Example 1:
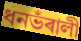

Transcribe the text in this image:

ধনভঁৰালী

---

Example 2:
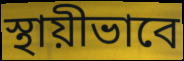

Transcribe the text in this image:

স্থায়ীভাবে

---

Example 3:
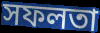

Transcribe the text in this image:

সফলতা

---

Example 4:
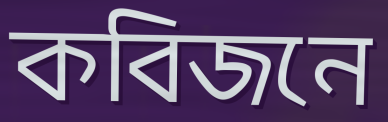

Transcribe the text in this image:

কবিজনে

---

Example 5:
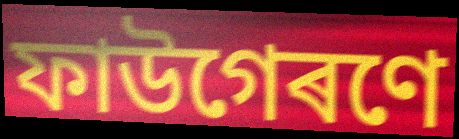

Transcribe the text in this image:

ফাউগেৰণে